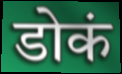
डोकं